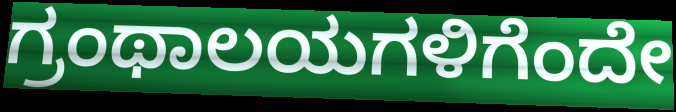
ಗ್ರಂಥಾಲಯಗಳಿಗೆಂದೇ